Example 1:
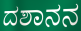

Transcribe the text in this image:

ದಶಾನನ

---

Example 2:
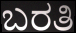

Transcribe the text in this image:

ಬರತಿ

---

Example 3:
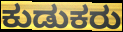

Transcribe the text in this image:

ಕುಡುಕರು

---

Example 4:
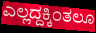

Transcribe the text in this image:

ಎಲ್ಲದ್ದಕ್ಕಿಂತಲೂ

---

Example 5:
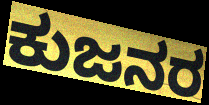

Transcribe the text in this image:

ಕುಜನರ